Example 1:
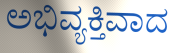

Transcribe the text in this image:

ಅಭಿವ್ಯಕ್ತಿವಾದ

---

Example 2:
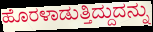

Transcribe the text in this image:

ಹೊರಳಾಡುತ್ತಿದ್ದುದನ್ನು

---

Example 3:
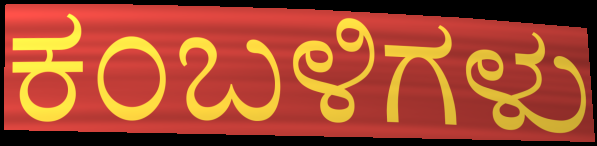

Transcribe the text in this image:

ಕಂಬಳಿಗಳು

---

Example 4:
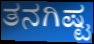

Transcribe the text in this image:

ತನಗಿಷ್ಟ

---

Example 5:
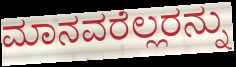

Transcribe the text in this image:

ಮಾನವರೆಲ್ಲರನ್ನು